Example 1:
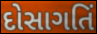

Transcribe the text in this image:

દોસાગતિં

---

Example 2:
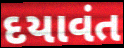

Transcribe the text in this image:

દયાવંત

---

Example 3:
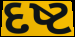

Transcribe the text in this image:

દષ્ટ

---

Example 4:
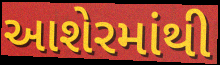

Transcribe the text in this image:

આશેરમાંથી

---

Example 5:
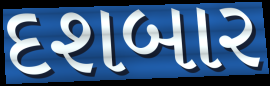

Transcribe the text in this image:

દશબાર